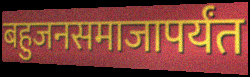
बहुजनसमाजापर्यंत